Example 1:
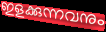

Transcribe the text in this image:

ഇളക്കുന്നവനും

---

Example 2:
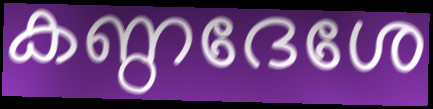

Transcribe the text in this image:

കണ്ഠദേശേ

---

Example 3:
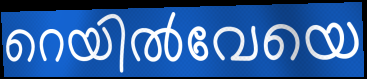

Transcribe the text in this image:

റെയിൽവേയെ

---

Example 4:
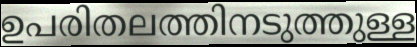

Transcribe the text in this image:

ഉപരിതലത്തിനടുത്തുള്ള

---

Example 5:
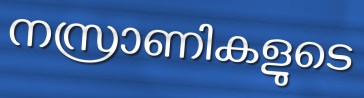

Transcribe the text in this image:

നസ്രാണികളുടെ